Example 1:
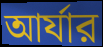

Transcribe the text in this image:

আর্যার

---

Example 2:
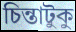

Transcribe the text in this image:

চিন্তাটুকু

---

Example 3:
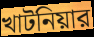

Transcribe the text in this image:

খাটনিয়ার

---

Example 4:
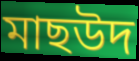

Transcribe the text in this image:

মাছউদ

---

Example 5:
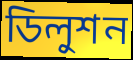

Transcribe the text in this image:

ডিলুশন